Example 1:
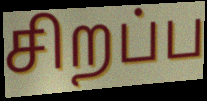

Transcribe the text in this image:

சிறப்ப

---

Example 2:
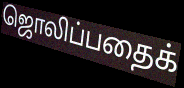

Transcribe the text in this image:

ஜொலிப்பதைக்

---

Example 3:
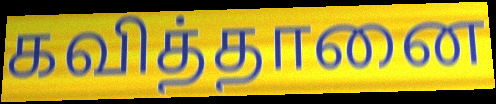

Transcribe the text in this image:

கவித்தானை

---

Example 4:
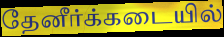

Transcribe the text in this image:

தேனீர்க்கடையில்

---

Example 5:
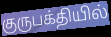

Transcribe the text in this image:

குருபக்தியில்